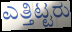
ಎತ್ತಿಟ್ಟರು